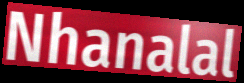
Nhanalal